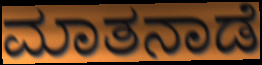
ಮಾತನಾಡೆ